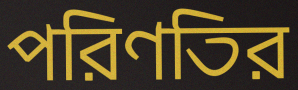
পরিণতির